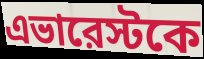
এভারেস্টকে